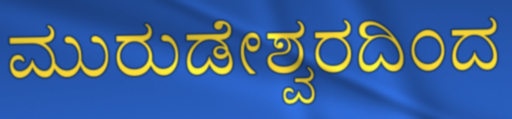
ಮುರುಡೇಶ್ವರದಿಂದ